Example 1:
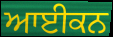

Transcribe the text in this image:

ਆਈਕਨ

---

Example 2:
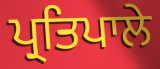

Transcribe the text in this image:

ਪ੍ਰਤਿਪਾਲੇ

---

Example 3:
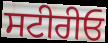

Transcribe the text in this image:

ਸਟੀਰੀਓ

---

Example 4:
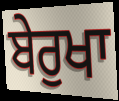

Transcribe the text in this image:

ਬੇਰੁਖਾ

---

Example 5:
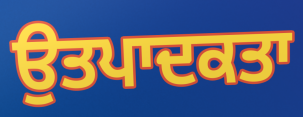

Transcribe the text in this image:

ਉਤਪਾਦਕਤਾ